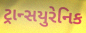
ટ્રાન્સયુરેનિક